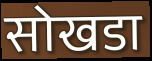
सोखडा